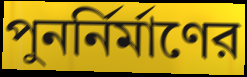
পুনর্নির্মাণের